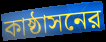
কাষ্ঠাসনের